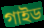
গাইড